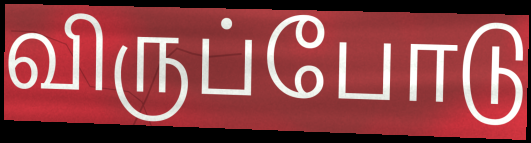
விருப்போடு